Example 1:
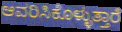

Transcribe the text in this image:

ಆವರಿಸಿಕೊಳ್ಳುತ್ತಾರೆ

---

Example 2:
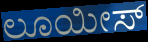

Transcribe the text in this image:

ಲೂಯೀಸ್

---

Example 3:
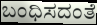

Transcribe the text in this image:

ಬಂಧಿಸದಂತೆ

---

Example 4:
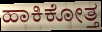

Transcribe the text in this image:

ಹಾಕಿಕೋತ್ತ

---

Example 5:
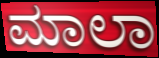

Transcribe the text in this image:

ಮಾಲಾ